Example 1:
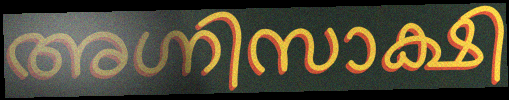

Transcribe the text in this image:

അഗ്നിസാക്ഷി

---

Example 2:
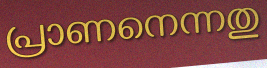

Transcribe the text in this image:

പ്രാണനെന്നതു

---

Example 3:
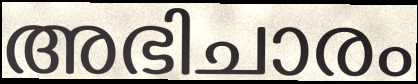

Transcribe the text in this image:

അഭിചാരം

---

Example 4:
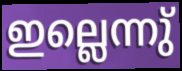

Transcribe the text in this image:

ഇല്ലെന്നു്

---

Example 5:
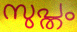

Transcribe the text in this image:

സുപ്തം